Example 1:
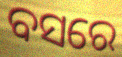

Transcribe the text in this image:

ବସରେ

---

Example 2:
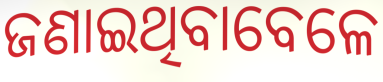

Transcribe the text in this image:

ଜଣାଇଥିବାବେଳେ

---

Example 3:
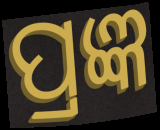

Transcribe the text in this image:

ପ୍ରଜ୍ଞ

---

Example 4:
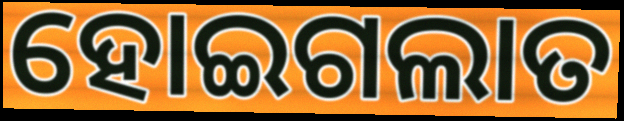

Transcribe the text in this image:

ହୋଇଗଲାତ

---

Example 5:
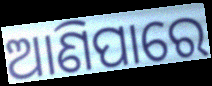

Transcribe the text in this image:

ଆଣିପାରେ